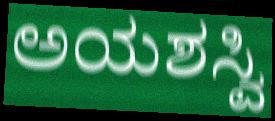
ಅಯಶಸ್ವಿ